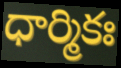
ధార్మికః